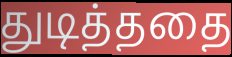
துடித்ததை